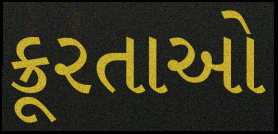
ક્રૂરતાઓ